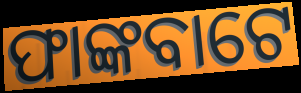
ଫାଙ୍କବାଟେ